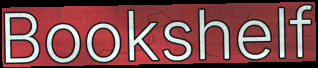
Bookshelf